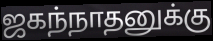
ஜகந்நாதனுக்கு